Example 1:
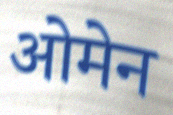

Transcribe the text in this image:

ओमेन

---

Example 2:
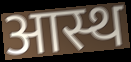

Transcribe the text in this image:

आस्थ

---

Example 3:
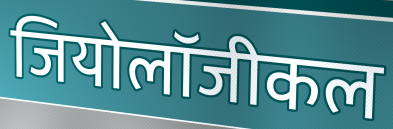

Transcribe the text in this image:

जियोलॉजीकल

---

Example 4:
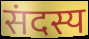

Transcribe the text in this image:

संदस्य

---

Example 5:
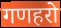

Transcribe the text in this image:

गणहरो